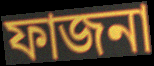
ফাজনা